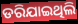
ଡରିଯାଇଥିଲି